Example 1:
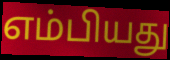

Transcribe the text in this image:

எம்பியது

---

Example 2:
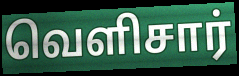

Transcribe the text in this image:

வெளிசார்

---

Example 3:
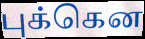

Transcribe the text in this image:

புக்கென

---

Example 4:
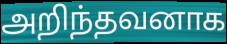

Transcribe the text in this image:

அறிந்தவனாக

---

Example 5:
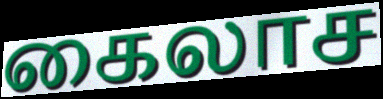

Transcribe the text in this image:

கைலாச